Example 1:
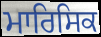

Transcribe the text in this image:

ਮਾਰਿਸਿਕ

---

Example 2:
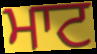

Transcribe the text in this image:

ਮਾਟ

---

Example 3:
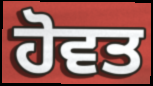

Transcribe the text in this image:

ਹੋਵਤ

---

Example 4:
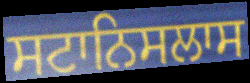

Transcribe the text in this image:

ਸਟਾਨਿਸਲਾਸ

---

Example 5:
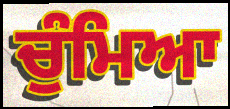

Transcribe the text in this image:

ਚੁੰਮਿਆ